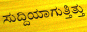
ಸುದ್ದಿಯಾಗುತ್ತಿತ್ತು